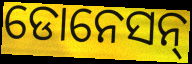
ଡୋନେସନ୍